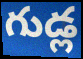
గుడ్ల